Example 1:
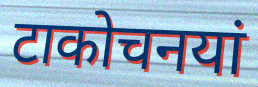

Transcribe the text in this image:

टाकोचनयां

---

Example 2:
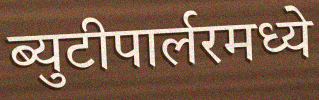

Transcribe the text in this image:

ब्युटीपार्लरमध्ये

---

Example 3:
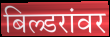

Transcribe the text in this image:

बिल्डरांवर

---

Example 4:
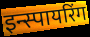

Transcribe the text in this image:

इन्स्पायरिंग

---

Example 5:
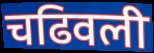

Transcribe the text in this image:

चढिवली